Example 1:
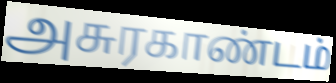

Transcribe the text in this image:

அசுரகாண்டம்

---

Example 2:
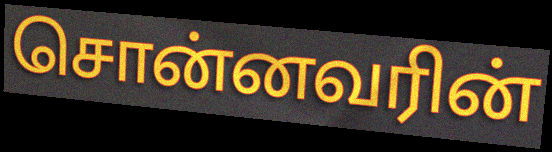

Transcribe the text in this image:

சொன்னவரின்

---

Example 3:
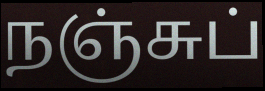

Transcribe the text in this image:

நஞ்சுப்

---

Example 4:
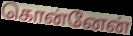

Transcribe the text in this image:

கொன்னேன்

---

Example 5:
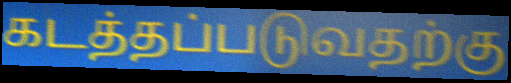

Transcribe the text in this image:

கடத்தப்படுவதற்கு